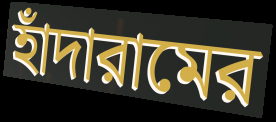
হাঁদারামের